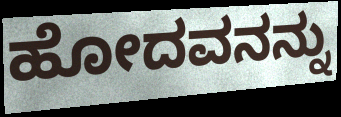
ಹೋದವನನ್ನು